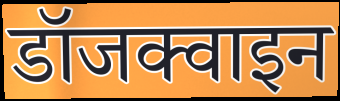
डॉजक्वाइन